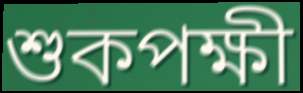
শুকপক্ষী